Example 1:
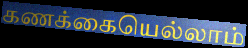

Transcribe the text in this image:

கணக்கையெல்லாம்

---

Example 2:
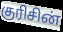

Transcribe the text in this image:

குரிசின்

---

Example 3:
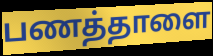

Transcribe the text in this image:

பணத்தாளை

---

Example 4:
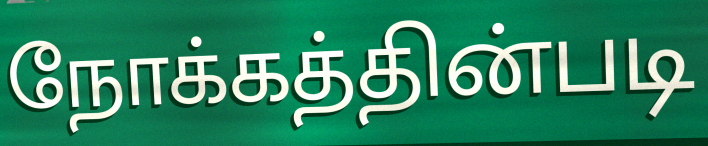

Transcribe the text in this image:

நோக்கத்தின்படி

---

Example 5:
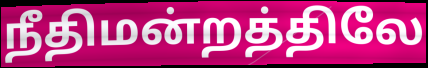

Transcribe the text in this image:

நீதிமன்றத்திலே